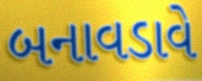
બનાવડાવે